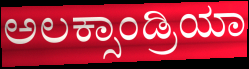
ಅಲಕ್ಸಾಂಡ್ರಿಯಾ